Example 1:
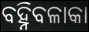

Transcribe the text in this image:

ବହ୍ନିବଳାକା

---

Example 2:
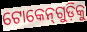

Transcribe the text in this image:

ଟୋକେନ୍‌ଗୁଡ଼ିକୁ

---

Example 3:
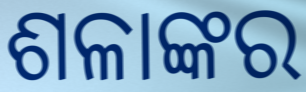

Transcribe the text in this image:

ଶଳାଙ୍କର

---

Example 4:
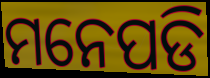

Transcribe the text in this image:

ମନେପଡି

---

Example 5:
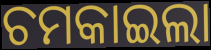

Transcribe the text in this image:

ଚମକାଇଲା